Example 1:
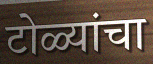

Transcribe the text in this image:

टोळ्यांचा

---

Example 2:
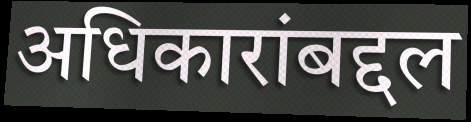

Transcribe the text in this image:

अधिकारांबद्दल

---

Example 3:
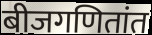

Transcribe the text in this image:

बीजगणितांत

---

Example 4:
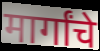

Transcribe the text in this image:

मार्गांचे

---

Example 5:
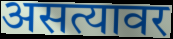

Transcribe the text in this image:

असत्यावर